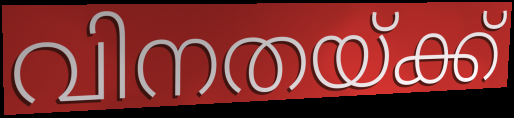
വിനതയ്ക്ക്